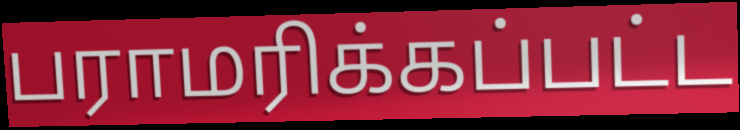
பராமரிக்கப்பட்ட